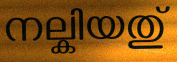
നല്കിയതു്